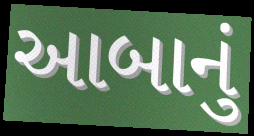
આબાનું